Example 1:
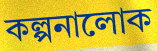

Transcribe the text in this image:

কল্পনালোক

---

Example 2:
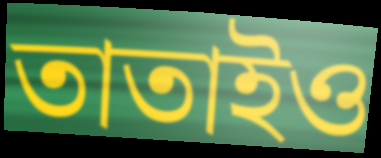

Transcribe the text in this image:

তাতাইও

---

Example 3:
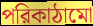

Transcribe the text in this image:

পরিকাঠামো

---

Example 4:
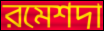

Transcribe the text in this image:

রমেশদা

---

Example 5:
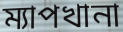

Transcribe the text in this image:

ম্যাপখানা